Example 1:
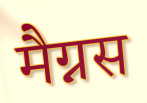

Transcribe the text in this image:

मैग्नस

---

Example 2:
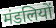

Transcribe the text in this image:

मंडलियों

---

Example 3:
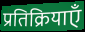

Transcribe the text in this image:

प्रतिक्रियाएँ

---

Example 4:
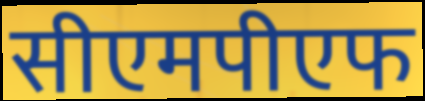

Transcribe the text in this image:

सीएमपीएफ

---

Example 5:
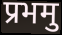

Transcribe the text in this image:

प्रभमु